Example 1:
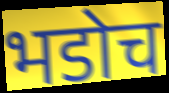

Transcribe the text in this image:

भडोच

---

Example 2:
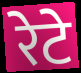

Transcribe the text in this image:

रेटे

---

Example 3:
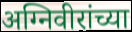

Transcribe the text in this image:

अग्निवीरांच्या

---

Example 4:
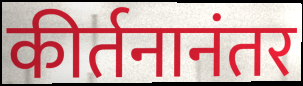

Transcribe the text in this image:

कीर्तनानंतर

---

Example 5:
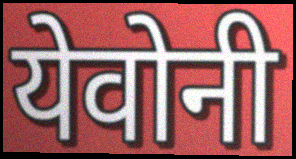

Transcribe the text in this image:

येवोनी